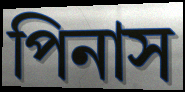
পিনাস